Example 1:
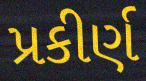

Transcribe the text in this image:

પ્રકીર્ણ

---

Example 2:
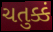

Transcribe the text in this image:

ચતુક્કં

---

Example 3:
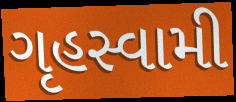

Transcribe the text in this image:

ગૃહસ્વામી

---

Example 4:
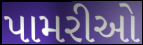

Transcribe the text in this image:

પામરીઓ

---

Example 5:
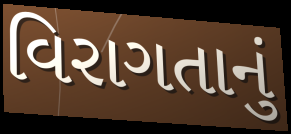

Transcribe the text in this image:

વિરાગતાનું